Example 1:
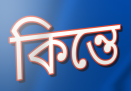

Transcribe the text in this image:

কিন্তে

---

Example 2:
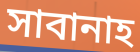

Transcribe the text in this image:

সাবানাহ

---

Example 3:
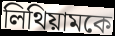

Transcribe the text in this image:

লিথিয়ামকে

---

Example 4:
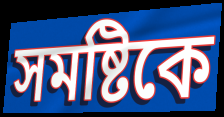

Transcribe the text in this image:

সমষ্টিকে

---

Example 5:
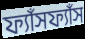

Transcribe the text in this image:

ফ্যাঁসফ্যাঁস